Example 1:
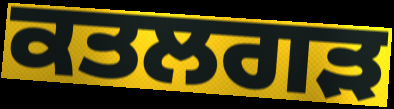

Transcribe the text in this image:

ਕਤਲਗੜ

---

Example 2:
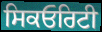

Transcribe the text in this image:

ਸਿਕਓਰਿਟੀ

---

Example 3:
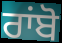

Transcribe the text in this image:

ਰਾਂਬੋ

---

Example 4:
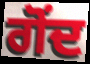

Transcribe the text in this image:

ਗੋਂਦ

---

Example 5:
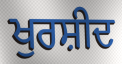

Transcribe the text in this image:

ਖੁਰਸ਼ੀਦ